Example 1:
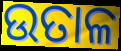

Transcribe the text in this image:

ଉତାଳ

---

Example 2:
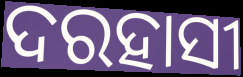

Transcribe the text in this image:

ଦରହାସୀ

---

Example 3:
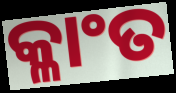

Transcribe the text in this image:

କ୍ଳାଂତ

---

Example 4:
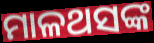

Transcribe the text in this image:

ମାଳଥସଙ୍କ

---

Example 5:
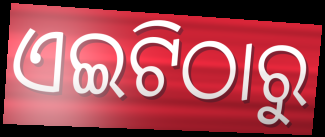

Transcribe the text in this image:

ଏଇଟିଠାରୁ